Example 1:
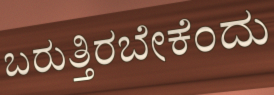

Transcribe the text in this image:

ಬರುತ್ತಿರಬೇಕೆಂದು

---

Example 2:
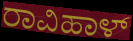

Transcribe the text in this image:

ರಾವಿಹಾಳ್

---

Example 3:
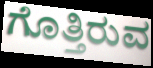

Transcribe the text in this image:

ಗೊತ್ತಿರುವ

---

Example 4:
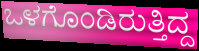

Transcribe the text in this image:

ಒಳಗೊಂಡಿರುತ್ತಿದ್ದ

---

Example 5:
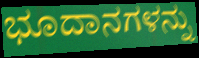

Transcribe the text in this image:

ಭೂದಾನಗಳನ್ನು